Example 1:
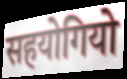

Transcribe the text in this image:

सहयोगियो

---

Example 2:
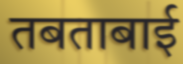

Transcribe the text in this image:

तबताबाई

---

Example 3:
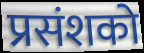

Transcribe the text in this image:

प्रसंशको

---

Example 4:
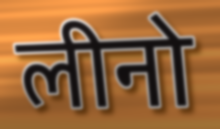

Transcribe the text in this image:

लीनो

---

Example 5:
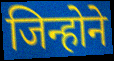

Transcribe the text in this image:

जिन्होने